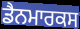
ਡੈਨਮਾਰਕਸ